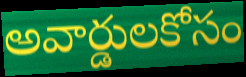
అవార్డులకోసం